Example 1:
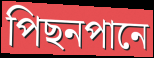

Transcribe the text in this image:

পিছনপানে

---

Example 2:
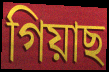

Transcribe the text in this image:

গিয়াছ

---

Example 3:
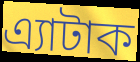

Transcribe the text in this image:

এ্যাটাক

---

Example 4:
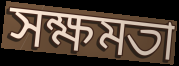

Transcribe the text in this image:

সক্ষমতা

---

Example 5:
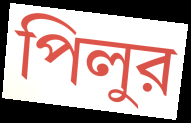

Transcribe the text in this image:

পিলুর